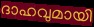
ദാഹവുമായി